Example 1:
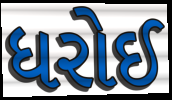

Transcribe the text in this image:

ધરોઈ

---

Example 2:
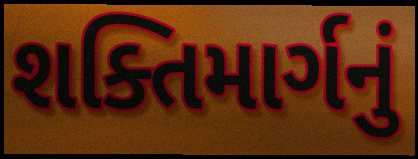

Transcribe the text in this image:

શક્તિમાર્ગનું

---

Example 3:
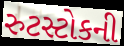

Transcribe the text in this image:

રુટસ્ટોકની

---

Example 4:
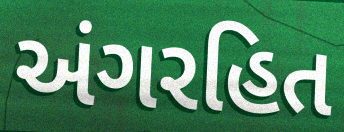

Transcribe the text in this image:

અંગરહિત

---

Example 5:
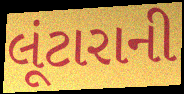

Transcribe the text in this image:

લૂંટારાની